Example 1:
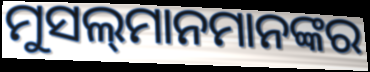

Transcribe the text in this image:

ମୁସଲ୍‌ମାନମାନଙ୍କର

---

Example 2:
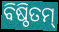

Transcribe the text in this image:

ବିଷ୍ଠିତମ୍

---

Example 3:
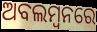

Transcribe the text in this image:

ଅବଲମ୍ବନରେ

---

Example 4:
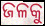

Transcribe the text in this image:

ଜଳକୁ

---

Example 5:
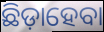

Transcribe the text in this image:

ଛିଡ଼ାହେବା